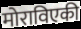
मोराविएकी